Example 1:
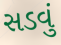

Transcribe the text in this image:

સડવું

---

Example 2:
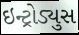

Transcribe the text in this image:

ઇન્ટ્રોડ્યુસ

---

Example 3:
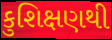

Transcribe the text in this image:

કુશિક્ષણથી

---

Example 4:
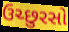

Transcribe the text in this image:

ઉચ્છુરસો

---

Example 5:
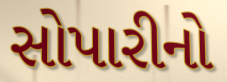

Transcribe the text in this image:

સોપારીનો